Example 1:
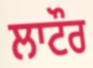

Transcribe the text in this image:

ਲਾਟੌਰ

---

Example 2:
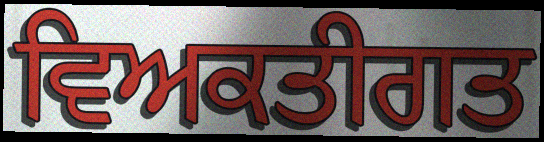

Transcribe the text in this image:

ਵਿਅਕਤੀਗਤ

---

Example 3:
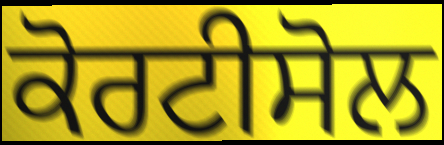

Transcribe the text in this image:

ਕੋਰਟੀਸੋਲ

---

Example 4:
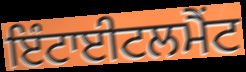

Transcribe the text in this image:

ਇੰਟਾਈਟਲਮੈਂਟ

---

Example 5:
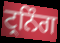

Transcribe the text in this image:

ਟ੍ਰਨਿੰਗ